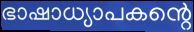
ഭാഷാധ്യാപകന്റെ